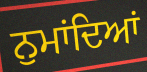
ਨੁਮਾਂਦਿਆਂ